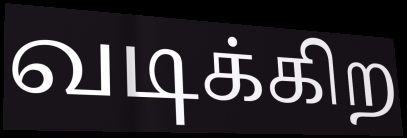
வடிக்கிற